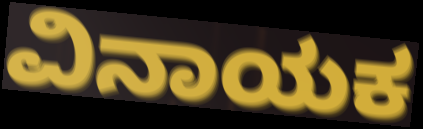
ವಿನಾಯಕ